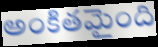
అంకితమైంది